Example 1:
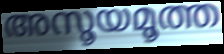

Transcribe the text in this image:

അസൂയമൂത്ത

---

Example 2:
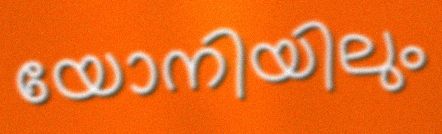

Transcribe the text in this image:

യോനിയിലും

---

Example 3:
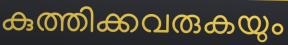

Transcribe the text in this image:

കുത്തിക്കവരുകയും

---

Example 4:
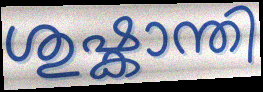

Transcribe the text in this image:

ശുഷ്കാന്തി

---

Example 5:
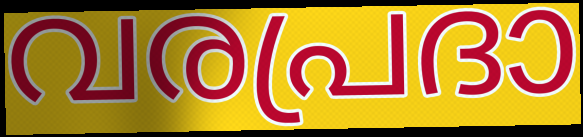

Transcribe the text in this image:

വരപ്രദാ